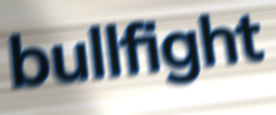
bullfight